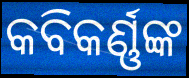
କବିକର୍ଣ୍ଣଙ୍କ